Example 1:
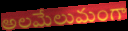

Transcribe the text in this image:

అలమేలుమంగా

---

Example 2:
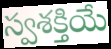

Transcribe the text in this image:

స్వశక్తియే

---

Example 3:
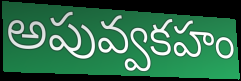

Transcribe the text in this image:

అపువ్వకహం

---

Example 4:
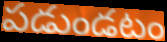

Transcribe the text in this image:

పడుండటం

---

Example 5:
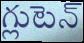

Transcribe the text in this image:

గ్లుటెన్